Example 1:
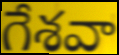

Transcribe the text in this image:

గేశవా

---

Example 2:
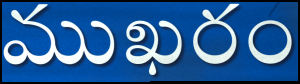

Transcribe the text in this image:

ముఖరం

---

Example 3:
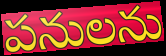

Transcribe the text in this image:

పనులను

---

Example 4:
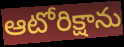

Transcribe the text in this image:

ఆటోరిక్షాను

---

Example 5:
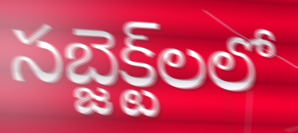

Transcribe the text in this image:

సబ్జెక్ట్‌లలో